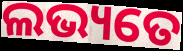
ଲଭ୍ୟତେ